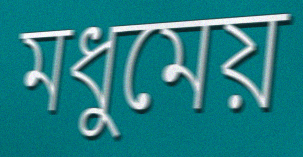
মধুমেয়